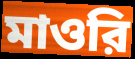
মাওরি